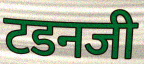
टडनजी